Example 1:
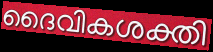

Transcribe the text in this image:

ദൈവികശക്തി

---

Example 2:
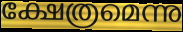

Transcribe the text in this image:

ക്ഷേത്രമെന്നു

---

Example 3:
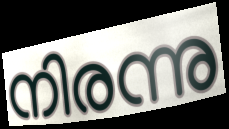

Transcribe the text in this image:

നിരന്നു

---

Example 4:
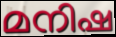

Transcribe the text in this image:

മനിഷ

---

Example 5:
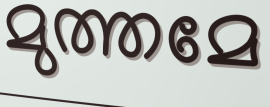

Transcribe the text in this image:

മുത്തമേ